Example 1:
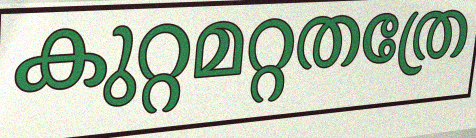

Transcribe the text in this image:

കുറ്റമറ്റതത്രേ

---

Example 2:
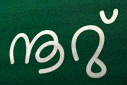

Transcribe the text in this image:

നൂറു്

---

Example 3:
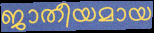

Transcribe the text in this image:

ജാതീയമായ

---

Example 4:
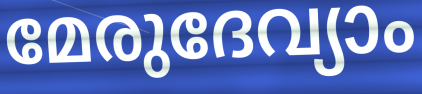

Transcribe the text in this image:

മേരുദേവ്യാം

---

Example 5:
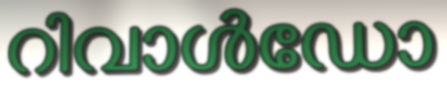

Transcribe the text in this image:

റിവാൾഡോ